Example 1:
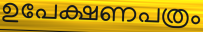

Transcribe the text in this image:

ഉപേക്ഷണപത്രം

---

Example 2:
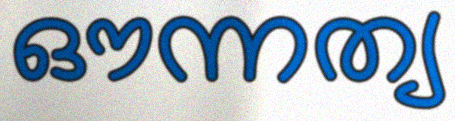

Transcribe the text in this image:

ഔന്നത്യ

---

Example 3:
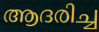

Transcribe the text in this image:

ആദരിച്ച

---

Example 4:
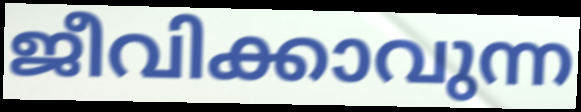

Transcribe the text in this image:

ജീവിക്കാവുന്ന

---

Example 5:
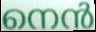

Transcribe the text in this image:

നെൻ